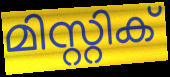
മിസ്റ്റിക്